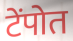
टेंपोत